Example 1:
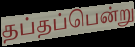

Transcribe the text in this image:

தப்தப்பென்று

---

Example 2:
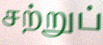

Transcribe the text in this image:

சற்றுப்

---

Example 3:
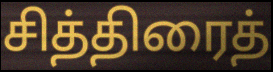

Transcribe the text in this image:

சித்திரைத்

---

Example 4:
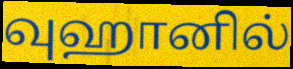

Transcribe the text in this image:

வுஹானில்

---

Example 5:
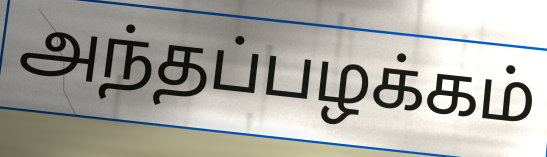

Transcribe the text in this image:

அந்தப்பழக்கம்